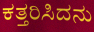
ಕತ್ತರಿಸಿದನು